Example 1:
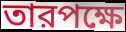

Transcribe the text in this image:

তারপক্ষে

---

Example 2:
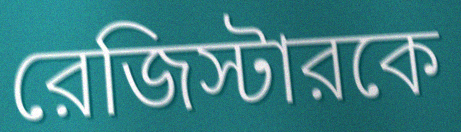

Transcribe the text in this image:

রেজিস্টারকে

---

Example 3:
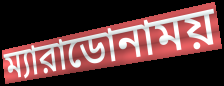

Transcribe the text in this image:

ম্যারাডোনাময়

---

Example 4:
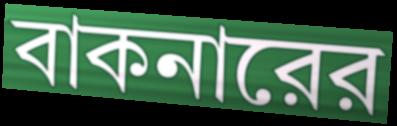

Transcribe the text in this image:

বাকনারের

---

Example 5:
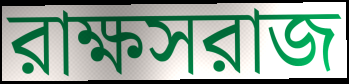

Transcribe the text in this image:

রাক্ষসরাজ